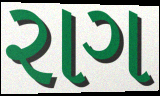
રાગ